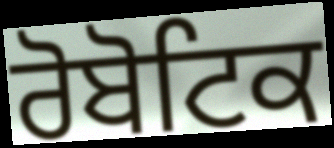
ਰੋਬੋਟਿਕ